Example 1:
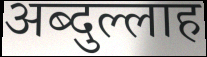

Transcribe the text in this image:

अब्दुल्लाह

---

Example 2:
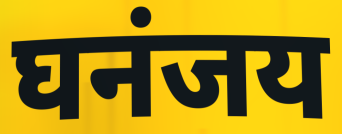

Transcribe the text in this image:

घनंजय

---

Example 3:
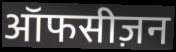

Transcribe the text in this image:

ऑफसीज़न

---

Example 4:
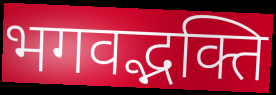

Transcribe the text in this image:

भगवद्भक्ति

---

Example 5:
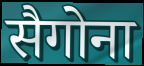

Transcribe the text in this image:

सैगोना